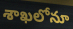
శాఖలోనూ